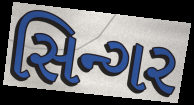
સિન્ગર